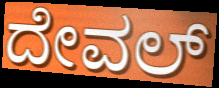
ದೇವಲ್